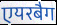
एयरबैग